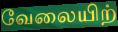
வேலையிற்